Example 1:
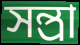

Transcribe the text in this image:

সন্ত্রা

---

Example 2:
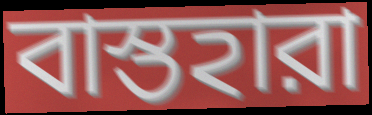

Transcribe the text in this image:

বাস্তহারা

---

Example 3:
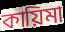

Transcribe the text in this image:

কায়িমা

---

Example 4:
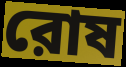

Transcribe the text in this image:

রোষ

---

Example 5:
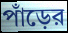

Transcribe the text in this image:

পাঁড়ের